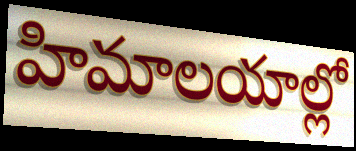
హిమాలయాల్లో